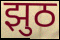
झुठ